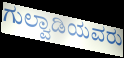
ಗುಲ್ವಾಡಿಯವರು